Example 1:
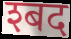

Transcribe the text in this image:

श्बद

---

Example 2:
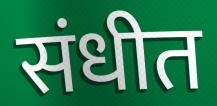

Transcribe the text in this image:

संधीत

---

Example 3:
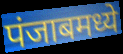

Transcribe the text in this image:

पंजाबमध्ये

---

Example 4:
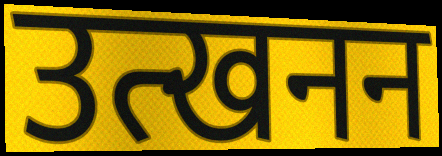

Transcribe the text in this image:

उत्खनन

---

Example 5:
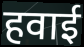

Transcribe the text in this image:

हवाई